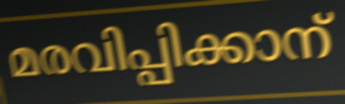
മരവിപ്പിക്കാന്